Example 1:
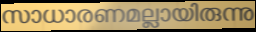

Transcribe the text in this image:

സാധാരണമല്ലായിരുന്നു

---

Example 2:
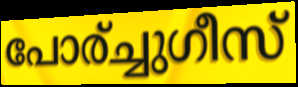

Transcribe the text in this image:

പോര്ച്ചുഗീസ്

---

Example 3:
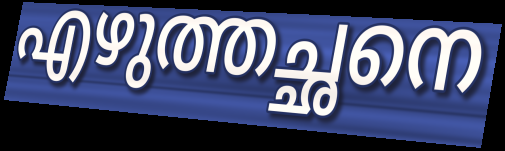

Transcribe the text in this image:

എഴുത്തച്ഛനെ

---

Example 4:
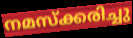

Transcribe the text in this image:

നമസ്ക്കരിച്ചു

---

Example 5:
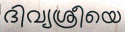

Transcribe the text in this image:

ദിവ്യശ്രീയെ